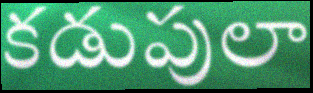
కడుపులా